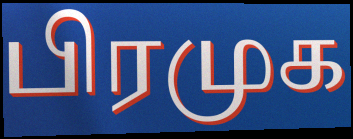
பிரமுக